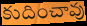
కుదించావు